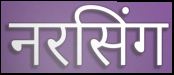
नरसिंग